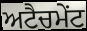
ਅਟੈਚਮੇਂਟ